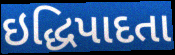
ઇદ્ધિપાદતા